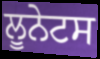
ਲੂਨੇਟਸ